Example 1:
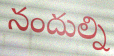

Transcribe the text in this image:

నందుల్ని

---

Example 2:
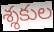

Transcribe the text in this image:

శ్శకుల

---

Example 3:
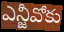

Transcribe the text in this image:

ఎన్జీవోకు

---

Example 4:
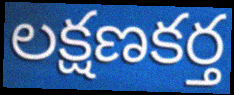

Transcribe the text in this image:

లక్షణకర్త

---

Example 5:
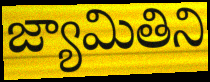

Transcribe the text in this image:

జ్యామితిని